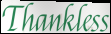
Thankless